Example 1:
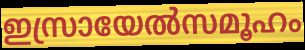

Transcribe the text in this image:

ഇസ്രായേൽസമൂഹം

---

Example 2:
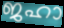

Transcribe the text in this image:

ജഹാ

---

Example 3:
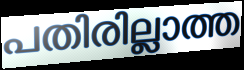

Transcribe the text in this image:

പതിരില്ലാത്ത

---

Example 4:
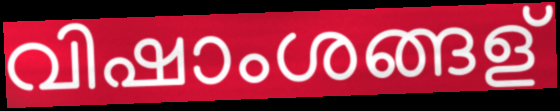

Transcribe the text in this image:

വിഷാംശങ്ങള്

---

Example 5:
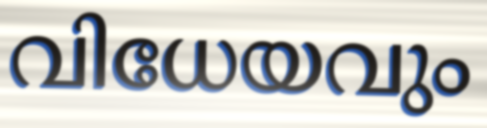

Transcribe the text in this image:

വിധേയവും